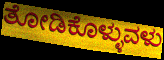
ತೋಡಿಕೊಳ್ಳುವಳು